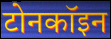
टोनकॉइन